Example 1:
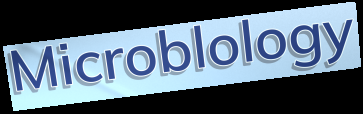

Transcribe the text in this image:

Microblology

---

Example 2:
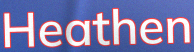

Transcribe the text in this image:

Heathen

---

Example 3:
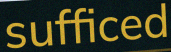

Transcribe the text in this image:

sufficed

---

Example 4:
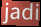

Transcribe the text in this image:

jadi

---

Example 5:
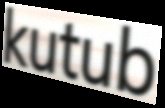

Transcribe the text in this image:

kutub